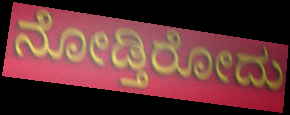
ನೋಡ್ತಿರೋದು